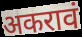
अकरावं